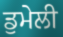
ਡੁਮੇਲੀ